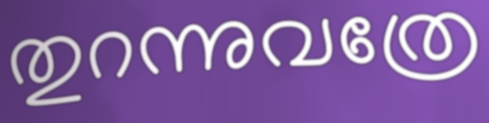
തുറന്നുവത്രേ